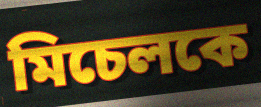
মিচেলকে